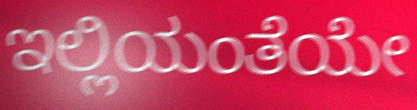
ಇಲ್ಲಿಯಂತೆಯೇ